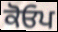
ਕੋਓਪ